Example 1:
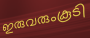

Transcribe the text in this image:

ഇരുവരുംകൂടി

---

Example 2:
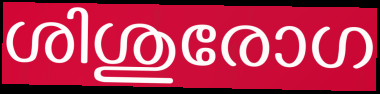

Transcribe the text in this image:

ശിശുരോഗ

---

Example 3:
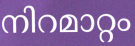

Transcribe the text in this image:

നിറമാറ്റം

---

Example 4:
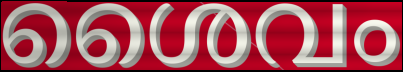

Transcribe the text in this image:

ശൈവം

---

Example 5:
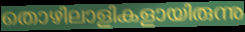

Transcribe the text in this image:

തൊഴിലാളികളായിരുന്നു